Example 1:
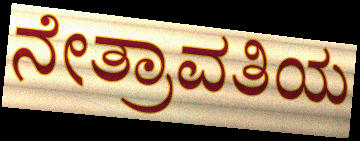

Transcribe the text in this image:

ನೇತ್ರಾವತಿಯ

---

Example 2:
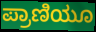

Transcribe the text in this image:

ಪ್ರಾಣಿಯೂ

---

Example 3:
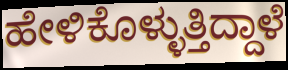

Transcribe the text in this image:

ಹೇಳಿಕೊಳ್ಳುತ್ತಿದ್ದಾಳೆ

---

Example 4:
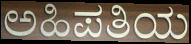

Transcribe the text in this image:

ಅಹಿಪತಿಯ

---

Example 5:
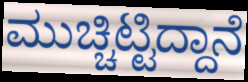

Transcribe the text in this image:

ಮುಚ್ಚಿಟ್ಟಿದ್ದಾನೆ